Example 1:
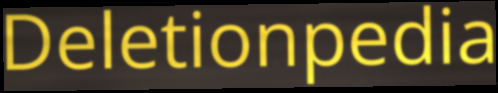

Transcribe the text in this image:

Deletionpedia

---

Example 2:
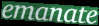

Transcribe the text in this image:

emanate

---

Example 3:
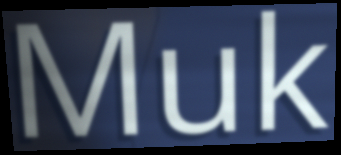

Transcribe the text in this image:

Muk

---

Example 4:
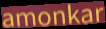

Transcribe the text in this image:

amonkar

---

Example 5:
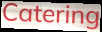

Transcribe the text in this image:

Catering